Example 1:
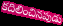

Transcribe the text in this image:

కదిలించినపుడు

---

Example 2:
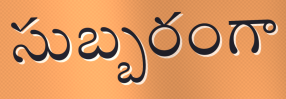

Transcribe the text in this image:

సుబ్బరంగా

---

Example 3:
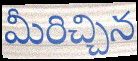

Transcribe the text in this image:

మీరిచ్చిన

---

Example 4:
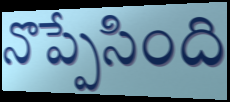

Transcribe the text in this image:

నొప్పేసింది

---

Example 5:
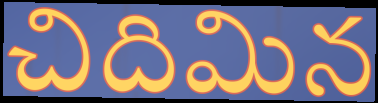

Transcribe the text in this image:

చిదిమిన